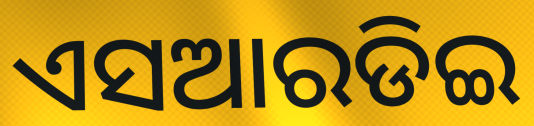
ଏସଆରଡିଇ